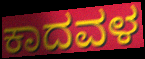
ಕಾದವಳ